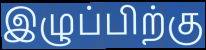
இழுப்பிற்கு